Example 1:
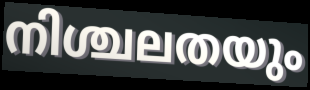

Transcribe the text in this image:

നിശ്ചലതയും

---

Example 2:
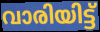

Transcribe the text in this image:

വാരിയിട്ട്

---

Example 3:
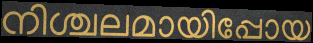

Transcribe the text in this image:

നിശ്ചലമായിപ്പോയ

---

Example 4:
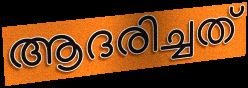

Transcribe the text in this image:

ആദരിച്ചത്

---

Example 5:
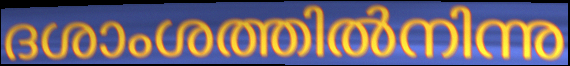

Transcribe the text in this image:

ദശാംശത്തിൽനിന്നു